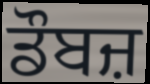
ਡੌਬਜ਼